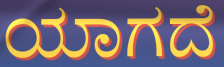
ಯಾಗದೆ